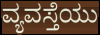
ವ್ಯವಸ್ತೆಯು